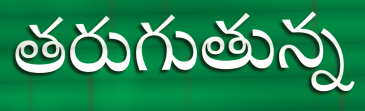
తరుగుతున్న